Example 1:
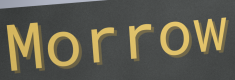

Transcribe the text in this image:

Morrow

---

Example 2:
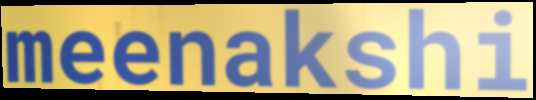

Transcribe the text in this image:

meenakshi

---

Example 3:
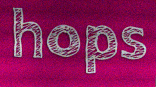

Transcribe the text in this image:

hops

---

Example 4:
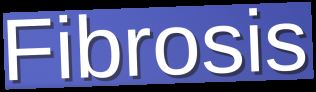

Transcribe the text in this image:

Fibrosis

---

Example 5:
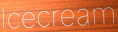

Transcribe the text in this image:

Icecream